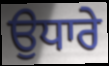
ਉਧਾਰੇ